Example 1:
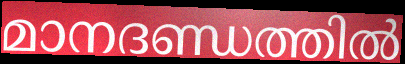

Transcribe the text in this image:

മാനദണ്ഡത്തിൽ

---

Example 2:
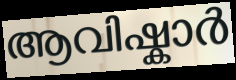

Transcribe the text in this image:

ആവിഷ്കാർ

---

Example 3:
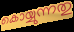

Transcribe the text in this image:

കൊയ്യുന്നതു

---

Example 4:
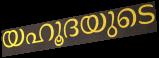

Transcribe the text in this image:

യഹൂദയുടെ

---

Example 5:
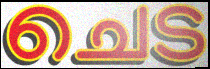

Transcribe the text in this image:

ചെട